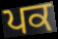
ਪਕ